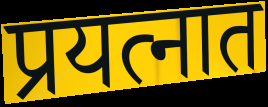
प्रयत्नात